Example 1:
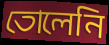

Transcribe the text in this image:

তোলেনি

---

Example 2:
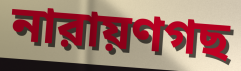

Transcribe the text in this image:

নারায়ণগছ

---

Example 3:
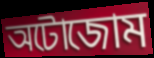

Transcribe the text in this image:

অটোজোম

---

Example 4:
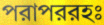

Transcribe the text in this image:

পরাপররহঃ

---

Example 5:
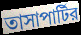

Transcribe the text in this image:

তাসাপার্টির